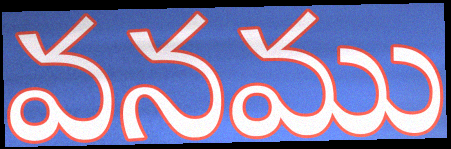
వనము